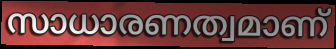
സാധാരണത്വമാണ്